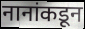
नानांकडून